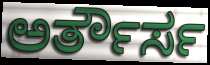
ಅರ್ತೌರ್ಸ